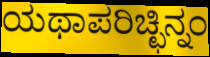
ಯಥಾಪರಿಚ್ಛಿನ್ನಂ